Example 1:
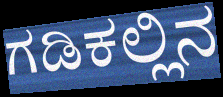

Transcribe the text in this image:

ಗಡಿಕಲ್ಲಿನ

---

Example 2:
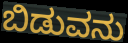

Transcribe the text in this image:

ಬಿಡುವನು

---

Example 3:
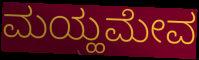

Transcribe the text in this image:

ಮಯ್ಹಮೇವ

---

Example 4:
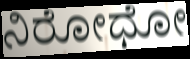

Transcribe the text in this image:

ನಿರೋಧೋ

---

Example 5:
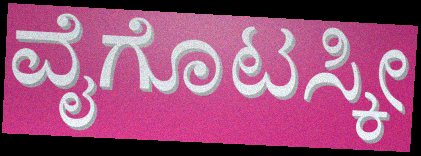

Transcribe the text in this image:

ವೈಗೊಟಸ್ಕೀ